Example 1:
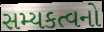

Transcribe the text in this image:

સમ્યકત્વનો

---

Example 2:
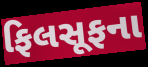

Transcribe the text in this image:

ફિલસૂફના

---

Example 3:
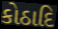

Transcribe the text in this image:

કોઠાદિ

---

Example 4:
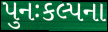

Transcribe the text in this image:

પુનઃકલ્પના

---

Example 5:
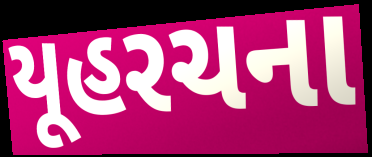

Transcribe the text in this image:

યૂહરચના